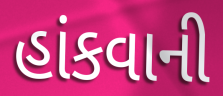
હાંકવાની